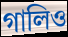
গালিও